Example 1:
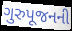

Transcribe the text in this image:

ગુરુપૂજનની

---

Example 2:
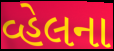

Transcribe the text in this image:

વ્હેલના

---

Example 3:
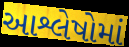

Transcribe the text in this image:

આશ્લેષોમાં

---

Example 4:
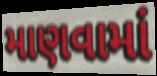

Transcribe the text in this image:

માણવામાં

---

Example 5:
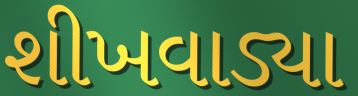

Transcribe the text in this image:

શીખવાડ્યા